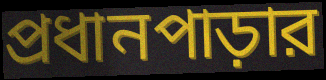
প্রধানপাড়ার